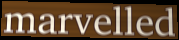
marvelled